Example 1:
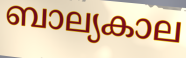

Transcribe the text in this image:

ബാല്യകാല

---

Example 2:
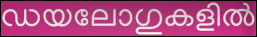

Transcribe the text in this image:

ഡയലോഗുകളിൽ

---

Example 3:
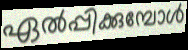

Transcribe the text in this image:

ഏൽപ്പിക്കുമ്പോൾ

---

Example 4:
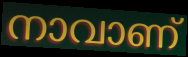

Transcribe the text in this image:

നാവാണ്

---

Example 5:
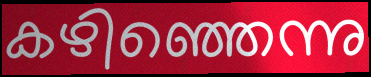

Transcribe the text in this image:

കഴിഞ്ഞെന്നു